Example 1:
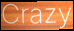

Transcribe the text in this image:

Crazy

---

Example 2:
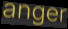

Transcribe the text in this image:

anger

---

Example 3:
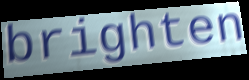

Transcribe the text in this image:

brighten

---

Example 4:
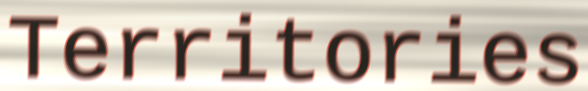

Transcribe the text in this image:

Territories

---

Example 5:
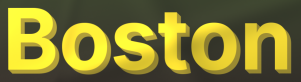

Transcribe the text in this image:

Boston